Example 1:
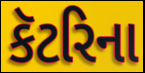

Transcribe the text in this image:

કૅટરિના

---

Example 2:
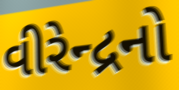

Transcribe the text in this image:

વીરેન્દ્રનો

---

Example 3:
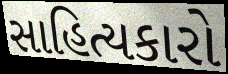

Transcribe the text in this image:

સાહિત્યકારો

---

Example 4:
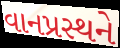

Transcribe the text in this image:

વાનપ્રસ્થને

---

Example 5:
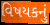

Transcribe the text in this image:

વિષયકનું